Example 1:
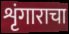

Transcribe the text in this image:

शृंगाराचा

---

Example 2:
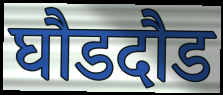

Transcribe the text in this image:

घौडदौड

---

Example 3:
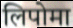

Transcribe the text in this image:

लिपोमा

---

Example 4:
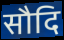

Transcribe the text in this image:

सौदि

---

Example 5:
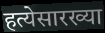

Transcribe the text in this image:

हत्येसारख्या